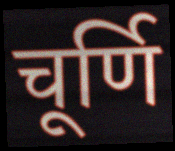
चूर्णि